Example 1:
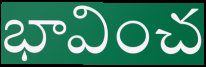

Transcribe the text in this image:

భావించ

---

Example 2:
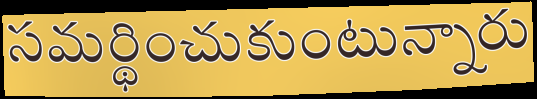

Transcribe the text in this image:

సమర్థించుకుంటున్నారు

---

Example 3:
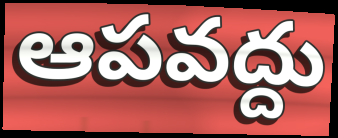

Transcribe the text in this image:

ఆపవద్దు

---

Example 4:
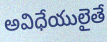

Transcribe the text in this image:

అవిధేయులైతే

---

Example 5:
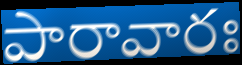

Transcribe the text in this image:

పారావారః